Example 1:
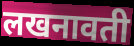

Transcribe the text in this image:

लखनावती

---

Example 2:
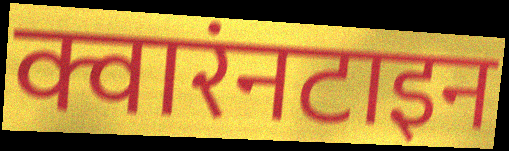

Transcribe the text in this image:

क्वारंनटाइन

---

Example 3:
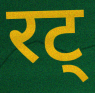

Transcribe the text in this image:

रट्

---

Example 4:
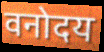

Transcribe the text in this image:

वनोदय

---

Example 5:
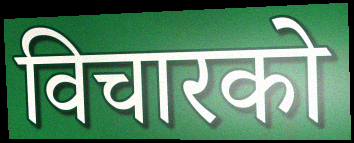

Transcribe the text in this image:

विचारको